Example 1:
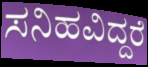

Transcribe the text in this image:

ಸನಿಹವಿದ್ದರೆ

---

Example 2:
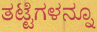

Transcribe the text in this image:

ತಟ್ಟೆಗಳನ್ನೂ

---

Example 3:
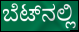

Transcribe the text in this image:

ಬೆಟ್‌ನಲ್ಲಿ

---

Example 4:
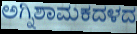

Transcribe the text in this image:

ಅಗ್ನಿಶಾಮಕದಳದ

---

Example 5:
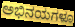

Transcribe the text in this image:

ಅಭಿನಯಗಳೂ